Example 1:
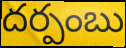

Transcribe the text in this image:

దర్పంబు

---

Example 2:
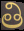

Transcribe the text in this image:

తి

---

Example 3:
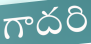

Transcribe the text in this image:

గాదరి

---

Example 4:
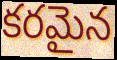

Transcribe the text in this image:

కరమైన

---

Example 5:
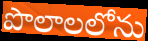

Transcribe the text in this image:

పొలాలలోను